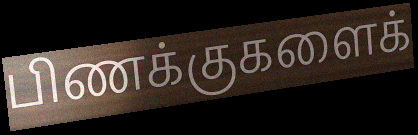
பிணக்குகளைக்